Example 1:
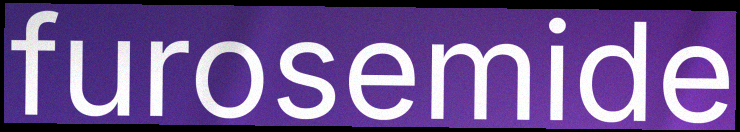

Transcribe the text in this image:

furosemide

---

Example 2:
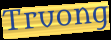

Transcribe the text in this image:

Truong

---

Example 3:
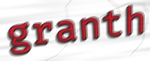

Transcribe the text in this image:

granth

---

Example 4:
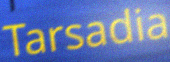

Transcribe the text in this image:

Tarsadia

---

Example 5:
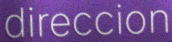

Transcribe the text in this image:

direccion